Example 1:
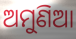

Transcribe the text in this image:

ଅମୁଣିଆ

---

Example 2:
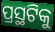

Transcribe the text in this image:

ପ୍ରସ୍ଥଟିକୁ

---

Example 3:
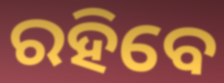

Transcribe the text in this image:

ରହିବେ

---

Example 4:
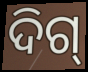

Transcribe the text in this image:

ଦିଗ୍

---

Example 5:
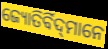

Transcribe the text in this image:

ଜ୍ୟୋତିର୍ବିଦ୍‌ମାନେ